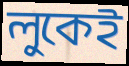
লুকেই